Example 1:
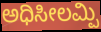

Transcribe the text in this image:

ಅಧಿಸೀಲಮ್ಪಿ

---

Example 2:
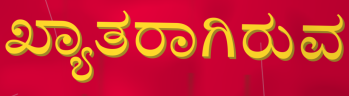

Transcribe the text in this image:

ಖ್ಯಾತರಾಗಿರುವ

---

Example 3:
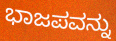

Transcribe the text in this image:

ಭಾಜಪವನ್ನು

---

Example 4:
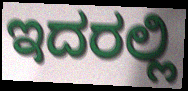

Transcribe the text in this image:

ಇದರಲ್ಲಿ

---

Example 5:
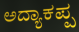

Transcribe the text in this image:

ಅದ್ಯಾಕಪ್ಪ